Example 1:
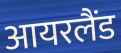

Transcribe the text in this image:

आयरलैंड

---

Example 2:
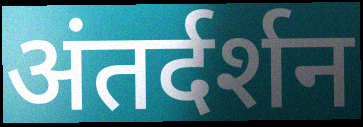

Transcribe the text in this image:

अंतर्दर्शन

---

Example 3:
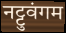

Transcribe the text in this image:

नट्टुवंगम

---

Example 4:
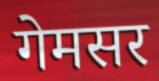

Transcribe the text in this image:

गेमसर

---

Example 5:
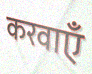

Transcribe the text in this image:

करवाएँ